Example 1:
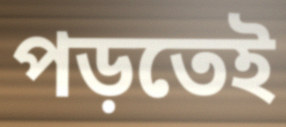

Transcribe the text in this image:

পড়তেই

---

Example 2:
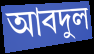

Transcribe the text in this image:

আবদুল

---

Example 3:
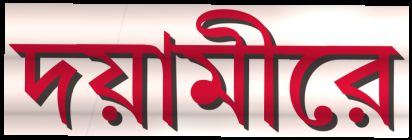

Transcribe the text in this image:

দয়ামীরে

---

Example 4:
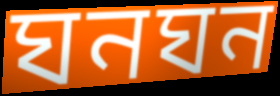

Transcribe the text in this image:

ঘনঘন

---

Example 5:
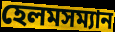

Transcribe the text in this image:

হেলমসম্যান